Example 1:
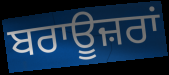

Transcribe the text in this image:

ਬਰਾਊਜ਼ਰਾਂ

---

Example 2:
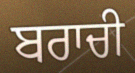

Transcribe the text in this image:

ਬਰਾਚੀ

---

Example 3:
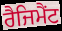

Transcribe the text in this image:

ਰੈਜਿਮੈਂਟ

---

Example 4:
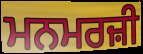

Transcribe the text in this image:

ਮਨਮਰਜ਼ੀ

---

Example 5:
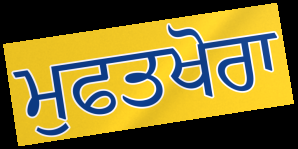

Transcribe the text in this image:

ਮੁਫਤਖੋਰਾ